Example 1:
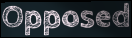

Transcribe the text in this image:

Opposed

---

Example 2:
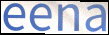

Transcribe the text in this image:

eena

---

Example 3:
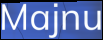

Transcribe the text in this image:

Majnu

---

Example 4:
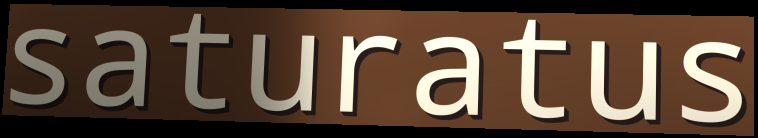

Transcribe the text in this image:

saturatus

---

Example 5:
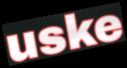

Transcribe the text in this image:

uske